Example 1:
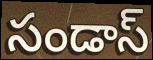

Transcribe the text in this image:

సండాస్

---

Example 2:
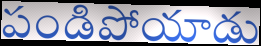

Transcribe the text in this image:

పండిపోయాడు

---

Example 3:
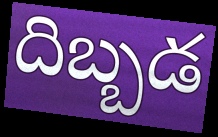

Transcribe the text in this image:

దిబ్బడ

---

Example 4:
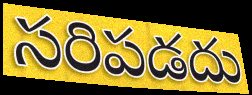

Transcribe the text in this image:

సరిపడదు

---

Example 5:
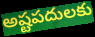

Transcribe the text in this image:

అష్టపదులకు